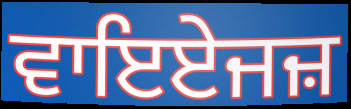
ਵਾਇਏਜਜ਼